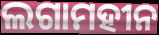
ଲଗାମହୀନ